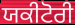
ਯਕੀਟੋਰੀ